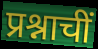
प्रश्नाचीं